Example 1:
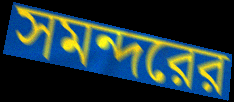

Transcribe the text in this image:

সমন্দরের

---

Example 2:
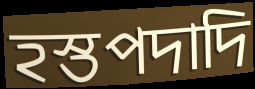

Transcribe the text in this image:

হস্তপদাদি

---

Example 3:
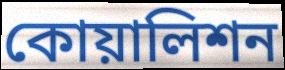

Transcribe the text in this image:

কোয়ালিশন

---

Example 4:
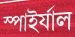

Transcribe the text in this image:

স্পাইর্যাল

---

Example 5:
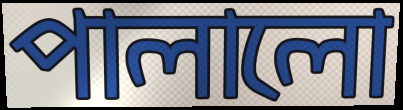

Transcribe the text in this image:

পালালো